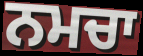
ਨਮਚਾ